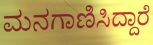
ಮನಗಾಣಿಸಿದ್ದಾರೆ